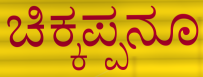
ಚಿಕ್ಕಪ್ಪನೂ